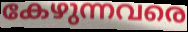
കേഴുന്നവരെ